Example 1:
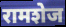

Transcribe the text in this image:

रामशेज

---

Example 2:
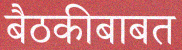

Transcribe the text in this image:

बैठकीबाबत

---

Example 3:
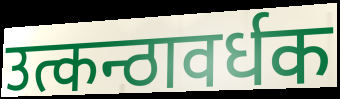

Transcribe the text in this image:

उत्कन्ठावर्धक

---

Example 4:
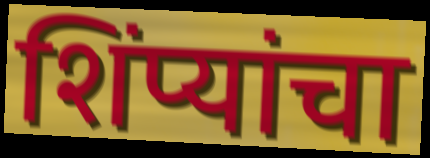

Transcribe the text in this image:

शिंप्यांचा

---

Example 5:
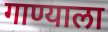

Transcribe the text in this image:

गाण्याला